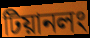
টিয়ানলং